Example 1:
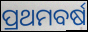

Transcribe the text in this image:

ପ୍ରଥମବର୍ଷ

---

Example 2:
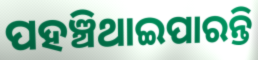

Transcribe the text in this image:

ପହଞ୍ଚିଥାଇପାରନ୍ତି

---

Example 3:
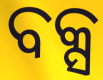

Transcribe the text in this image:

ବକ୍ସ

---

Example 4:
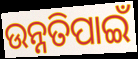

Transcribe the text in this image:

ଉନ୍ନତିପାଇଁ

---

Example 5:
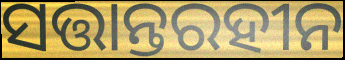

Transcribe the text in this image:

ସତ୍ତାନ୍ତରହୀନ